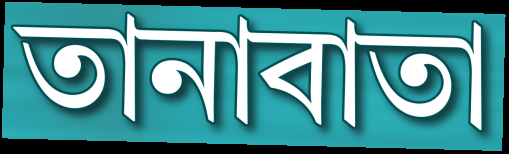
তানাবাতা